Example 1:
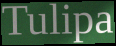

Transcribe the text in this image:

Tulipa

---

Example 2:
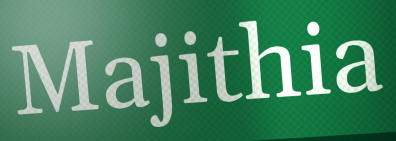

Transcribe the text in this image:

Majithia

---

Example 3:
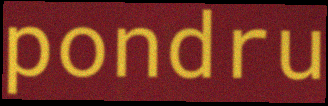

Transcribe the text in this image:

pondru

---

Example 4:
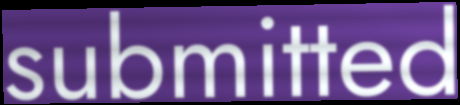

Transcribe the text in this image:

submitted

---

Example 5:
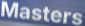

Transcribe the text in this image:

Masters